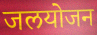
जलयोजन